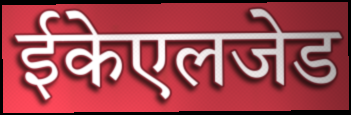
ईकेएलजेड